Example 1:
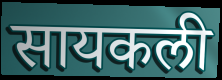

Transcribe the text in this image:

सायकली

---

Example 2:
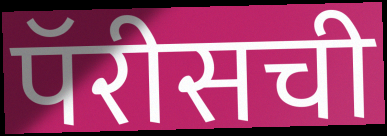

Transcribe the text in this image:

पॅरीसची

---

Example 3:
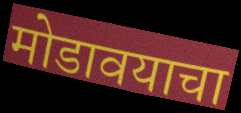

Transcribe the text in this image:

मोडावयाचा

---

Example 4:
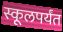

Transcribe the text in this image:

स्कूलपर्यंत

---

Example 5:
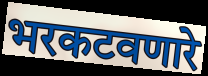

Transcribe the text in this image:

भरकटवणारे